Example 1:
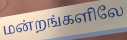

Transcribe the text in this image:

மன்றங்களிலே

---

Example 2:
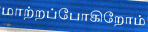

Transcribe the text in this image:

மாற்றப்போகிறோம்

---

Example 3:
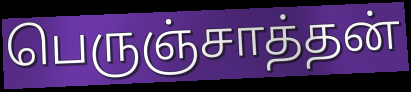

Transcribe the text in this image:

பெருஞ்சாத்தன்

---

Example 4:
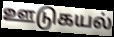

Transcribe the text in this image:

ஊடுகயல்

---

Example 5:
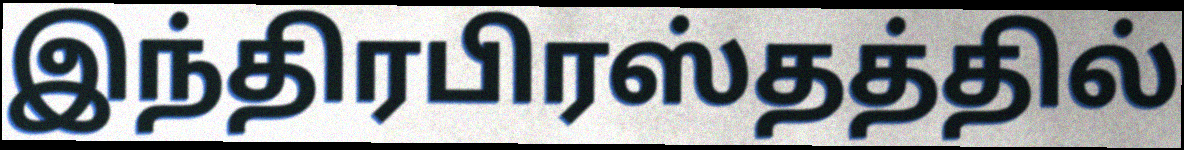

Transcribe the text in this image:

இந்திரபிரஸ்தத்தில்